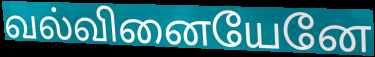
வல்வினையேனே